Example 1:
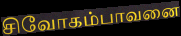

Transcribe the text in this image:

சிவோகம்பாவனை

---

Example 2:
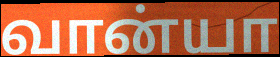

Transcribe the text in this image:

வான்யா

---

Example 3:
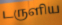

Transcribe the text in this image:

டருளிய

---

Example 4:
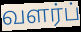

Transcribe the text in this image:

வளர்ப்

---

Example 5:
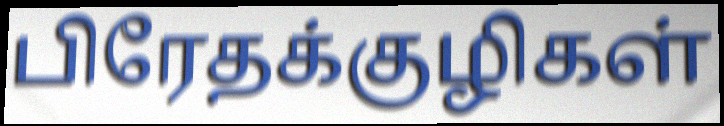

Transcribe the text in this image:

பிரேதக்குழிகள்